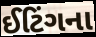
ઈટિંગના